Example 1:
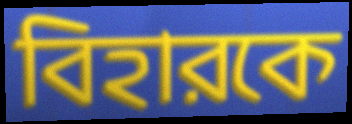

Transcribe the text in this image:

বিহারকে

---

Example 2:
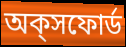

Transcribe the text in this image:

অক্‌সফোর্ড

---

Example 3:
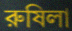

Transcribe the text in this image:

রুষিলা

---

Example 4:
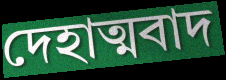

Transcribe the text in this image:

দেহাত্মবাদ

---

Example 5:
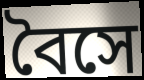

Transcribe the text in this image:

বৈসে